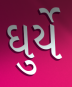
ઘુર્યે